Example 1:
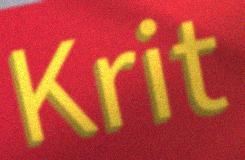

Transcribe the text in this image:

Krit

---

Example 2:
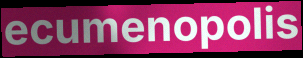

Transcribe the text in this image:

ecumenopolis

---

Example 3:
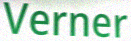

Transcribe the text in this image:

Verner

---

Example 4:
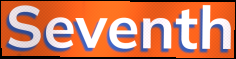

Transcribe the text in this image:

Seventh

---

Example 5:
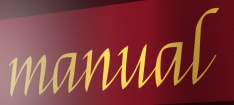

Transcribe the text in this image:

manual